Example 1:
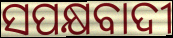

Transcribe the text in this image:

ସପକ୍ଷବାଦୀ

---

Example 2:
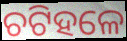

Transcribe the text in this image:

ଚଟିହଳେ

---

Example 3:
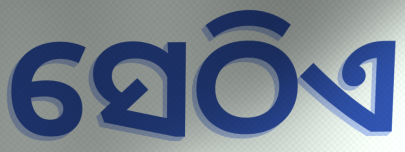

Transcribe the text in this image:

ସେଠିଏ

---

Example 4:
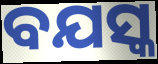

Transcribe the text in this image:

ବଯସ୍କ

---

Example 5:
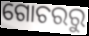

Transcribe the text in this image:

ଗୋଚରରୁ